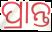
ପ୍ରାନ୍ତ